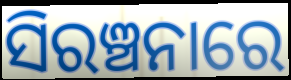
ସିରଞ୍ଚନାରେ